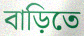
বাড়িতে